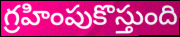
గ్రహింపుకొస్తుంది